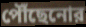
পৌঁছেনোর